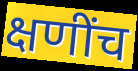
क्षणींच